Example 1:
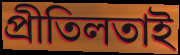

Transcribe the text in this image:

প্ৰীতিলতাই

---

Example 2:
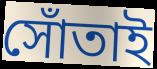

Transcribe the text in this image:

সোঁতাই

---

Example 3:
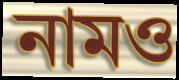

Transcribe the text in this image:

নামও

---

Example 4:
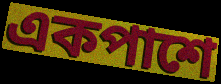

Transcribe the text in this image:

একপাশে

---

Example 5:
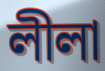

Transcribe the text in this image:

লীলা